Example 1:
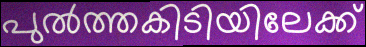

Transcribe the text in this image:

പുൽത്തകിടിയിലേക്ക്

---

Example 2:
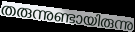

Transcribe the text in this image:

തരുന്നുണ്ടായിരുന്നു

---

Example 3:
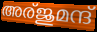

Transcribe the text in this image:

അര്ജുമന്ദ്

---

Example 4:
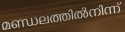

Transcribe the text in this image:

മണ്ഡലത്തിൽനിന്ന്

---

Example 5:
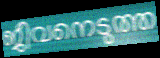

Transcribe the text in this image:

ജീവനെടുത്ത